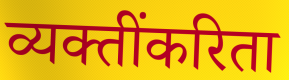
व्यक्तींकरिता